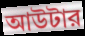
আউটার